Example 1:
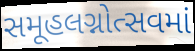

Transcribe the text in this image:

સમૂહલગ્નોત્સવમાં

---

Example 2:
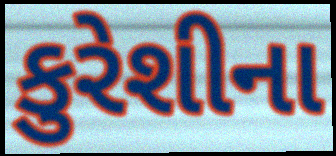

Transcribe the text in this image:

કુરેશીના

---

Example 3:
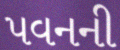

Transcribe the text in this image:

પવનની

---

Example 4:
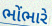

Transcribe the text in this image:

ભોંભારે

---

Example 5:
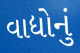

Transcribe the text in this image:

વાદ્યોનું